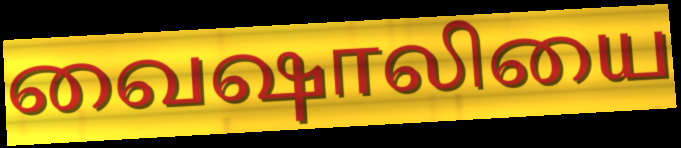
வைஷாலியை